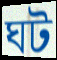
ঘট